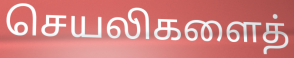
செயலிகளைத்